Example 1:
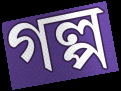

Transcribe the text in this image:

গল্প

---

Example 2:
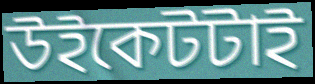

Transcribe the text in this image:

উইকেটটাই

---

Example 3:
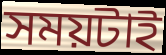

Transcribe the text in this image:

সময়টাই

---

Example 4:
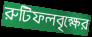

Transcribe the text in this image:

রুটিফলবৃক্ষের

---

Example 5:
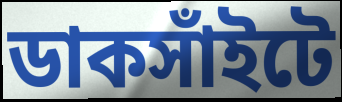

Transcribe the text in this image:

ডাকসাঁইটে